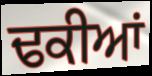
ਢਕੀਆਂ